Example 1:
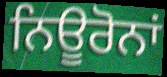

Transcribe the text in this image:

ਨਿਊਰੋਨਾਂ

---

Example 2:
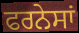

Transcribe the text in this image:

ਫਰਨੇਸਾਂ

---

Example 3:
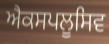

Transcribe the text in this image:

ਐਕਸਪਲੂਸਿਵ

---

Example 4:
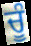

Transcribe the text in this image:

ਚੂੰ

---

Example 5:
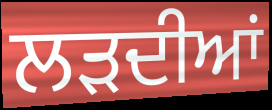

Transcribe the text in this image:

ਲੜਦੀਆਂ